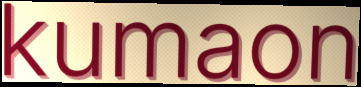
kumaon